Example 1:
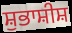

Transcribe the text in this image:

ਸ਼ੁਭਾਸ਼ੀਸ਼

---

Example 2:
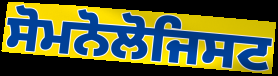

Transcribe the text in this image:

ਸੋਮਨੋਲੋਜਿਸਟ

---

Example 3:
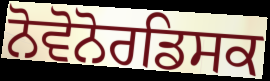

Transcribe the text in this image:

ਨੋਵੋਨੋਰਡਿਸਕ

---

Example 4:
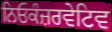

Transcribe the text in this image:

ਨਿਓਕੰਜ਼ਰਵੇਟਿਵ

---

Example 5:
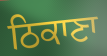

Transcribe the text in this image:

ਠਿਕਾਣਾ